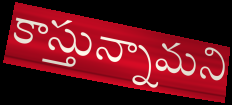
కాస్తున్నామని